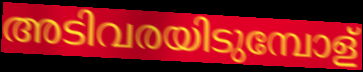
അടിവരയിടുമ്പോള്